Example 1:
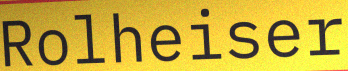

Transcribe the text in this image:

Rolheiser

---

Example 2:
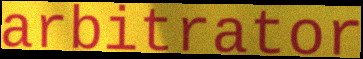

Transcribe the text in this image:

arbitrator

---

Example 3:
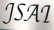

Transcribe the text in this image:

JSAI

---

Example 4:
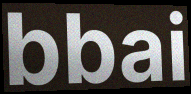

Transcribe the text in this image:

bbai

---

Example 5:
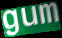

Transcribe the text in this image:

gum